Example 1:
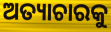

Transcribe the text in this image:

ଅତ୍ୟାଚାରକୁ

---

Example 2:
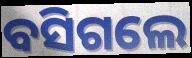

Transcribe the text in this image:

ବସିଗଲେ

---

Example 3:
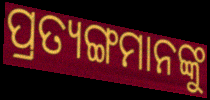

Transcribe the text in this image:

ପ୍ରତ୍ୟଙ୍ଗମାନଙ୍କୁ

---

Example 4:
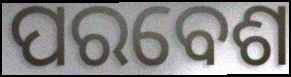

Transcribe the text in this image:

ପରବେଶ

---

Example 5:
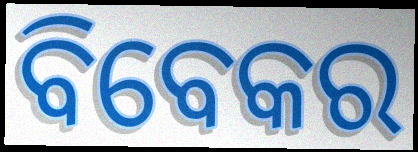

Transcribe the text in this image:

ବିବେକର